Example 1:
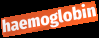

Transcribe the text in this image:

haemoglobin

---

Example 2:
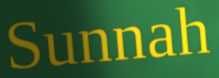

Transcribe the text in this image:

Sunnah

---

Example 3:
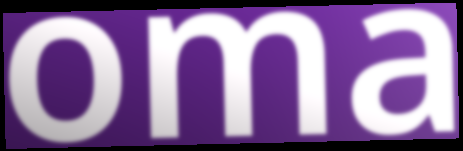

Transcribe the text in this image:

oma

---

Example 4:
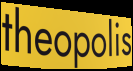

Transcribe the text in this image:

theopolis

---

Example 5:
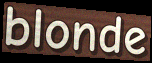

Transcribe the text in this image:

blonde